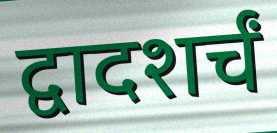
द्वादशर्चं